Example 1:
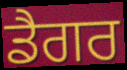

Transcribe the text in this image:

ਡੈਗਰ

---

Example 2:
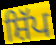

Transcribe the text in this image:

ਸ਼ਿੱਪ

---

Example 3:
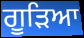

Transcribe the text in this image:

ਗੂੜਿਆ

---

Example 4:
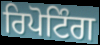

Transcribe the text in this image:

ਰਿਪੋਟਿੰਗ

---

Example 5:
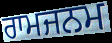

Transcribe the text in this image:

ਰਾਮਜਨਮ